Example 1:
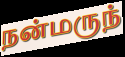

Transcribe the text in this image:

நன்மருந்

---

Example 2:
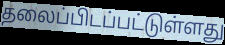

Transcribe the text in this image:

தலைப்பிடப்பட்டுள்ளது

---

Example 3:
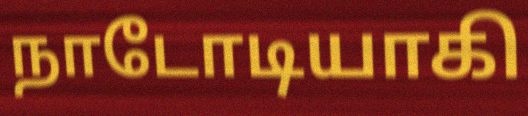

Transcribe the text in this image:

நாடோடியாகி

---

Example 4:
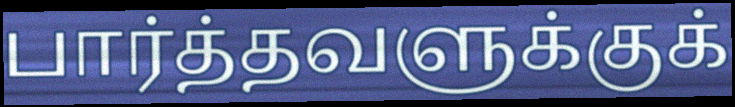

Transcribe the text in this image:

பார்த்தவளுக்குக்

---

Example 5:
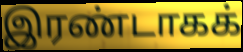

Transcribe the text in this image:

இரண்டாகக்